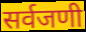
सर्वजणी